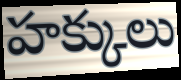
హక్కులు